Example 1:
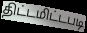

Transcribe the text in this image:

திட்டமிட்டபடி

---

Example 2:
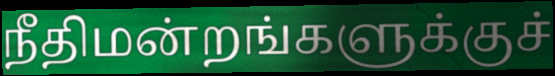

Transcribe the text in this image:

நீதிமன்றங்களுக்குச்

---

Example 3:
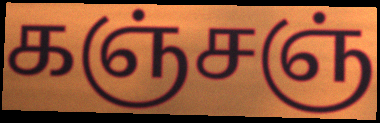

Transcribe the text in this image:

கஞ்சஞ்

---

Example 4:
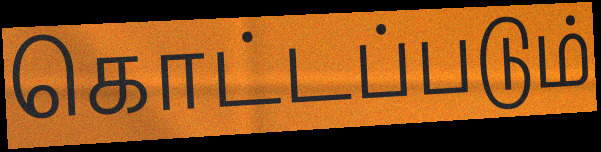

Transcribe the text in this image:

கொட்டப்படும்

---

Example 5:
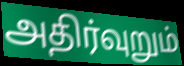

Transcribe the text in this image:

அதிர்வுறும்